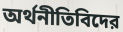
অর্থনীতিবিদের